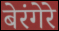
बेरंगेरे